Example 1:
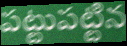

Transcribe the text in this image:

పట్టుపట్టిన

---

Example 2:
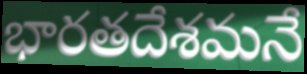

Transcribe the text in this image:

భారతదేశమనే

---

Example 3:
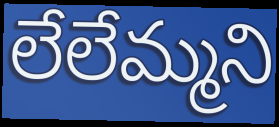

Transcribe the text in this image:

లేలేమ్మని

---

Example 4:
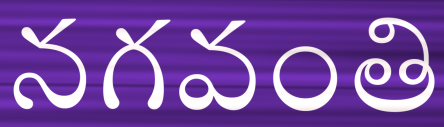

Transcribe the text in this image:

నగవంతి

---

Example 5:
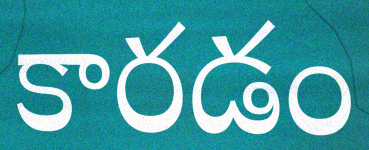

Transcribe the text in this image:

కారడం